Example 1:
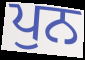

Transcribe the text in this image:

ਪੁਨ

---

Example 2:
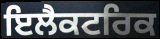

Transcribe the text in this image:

ਇਲੈਕਟਰਿਕ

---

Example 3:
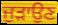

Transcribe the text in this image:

ਜੁੜਾਉਣ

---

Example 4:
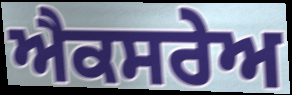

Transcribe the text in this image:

ਐਕਸਰੇਅ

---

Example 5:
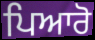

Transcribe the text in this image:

ਪਿਆਰੋ